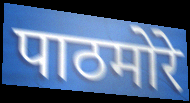
पाठमोरे